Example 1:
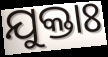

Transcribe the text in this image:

ଯୁକ୍ତାଃ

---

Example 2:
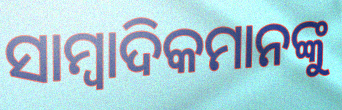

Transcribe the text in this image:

ସାମ୍ବାଦିକମାନଙ୍କୁ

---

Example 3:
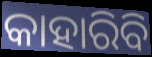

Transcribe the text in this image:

କାହାରିବି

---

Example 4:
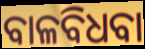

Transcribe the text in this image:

ବାଳବିଧବା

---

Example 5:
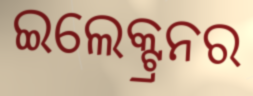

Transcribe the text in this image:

ଇଲେକ୍ଟ୍ରନର